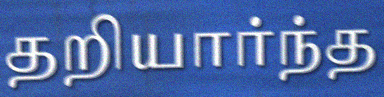
தறியார்ந்த